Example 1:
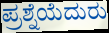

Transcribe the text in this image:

ಪ್ರಶ್ನೆಯೆದುರು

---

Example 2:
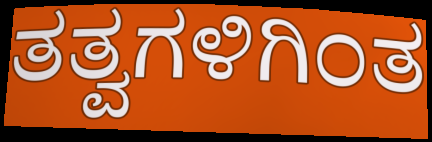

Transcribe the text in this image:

ತತ್ವಗಳಿಗಿಂತ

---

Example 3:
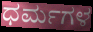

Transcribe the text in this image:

ಧರ್ಮಗಳ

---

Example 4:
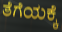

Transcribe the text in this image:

ತೆಗೆಯಕ್ಕೆ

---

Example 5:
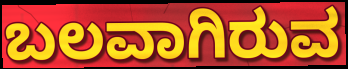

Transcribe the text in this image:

ಬಲವಾಗಿರುವ